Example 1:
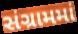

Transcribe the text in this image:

સંગ્રામમાં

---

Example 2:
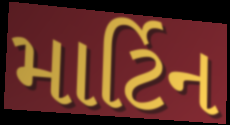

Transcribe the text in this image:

માર્ટિન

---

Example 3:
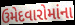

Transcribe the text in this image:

ઉમેદવારોમાંના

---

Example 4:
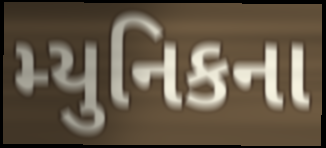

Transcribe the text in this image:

મ્યુનિકના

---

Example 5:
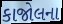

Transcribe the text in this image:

કાજોલના